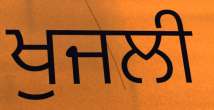
ਖੁਜਲੀ